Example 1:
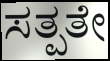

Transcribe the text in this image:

ಸತ್ಪತೇ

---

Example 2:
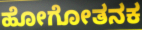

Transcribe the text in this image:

ಹೋಗೋತನಕ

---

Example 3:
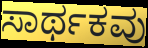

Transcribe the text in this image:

ಸಾರ್ಥಕವು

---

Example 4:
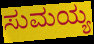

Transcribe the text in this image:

ಸುಮಯ್ಯ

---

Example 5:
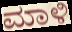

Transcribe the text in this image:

ಮಾಳಿ